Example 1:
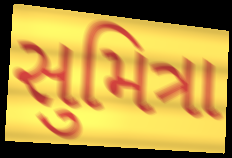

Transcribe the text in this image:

સુમિત્રા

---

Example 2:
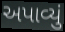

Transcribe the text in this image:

અપાવ્યું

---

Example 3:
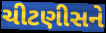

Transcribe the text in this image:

ચીટણીસને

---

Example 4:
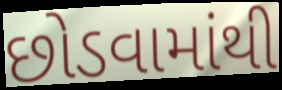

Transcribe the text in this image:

છોડવામાંથી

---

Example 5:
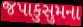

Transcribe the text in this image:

જપાકુસુમના